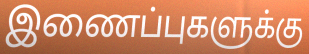
இணைப்புகளுக்கு